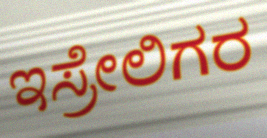
ಇಸ್ರೇಲಿಗರ